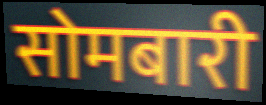
सोमबारी